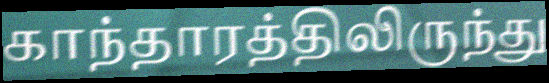
காந்தாரத்திலிருந்து